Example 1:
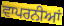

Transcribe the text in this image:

ਵਾਪਰਨੀਆਂ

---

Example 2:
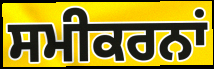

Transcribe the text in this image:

ਸਮੀਕਰਨਾਂ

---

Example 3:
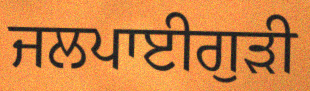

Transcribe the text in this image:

ਜਲਪਾਈਗੁਡ਼ੀ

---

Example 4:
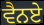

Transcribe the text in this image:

ਵੈਨਏ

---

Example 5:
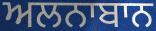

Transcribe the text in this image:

ਅਲਨਾਬਾਨ